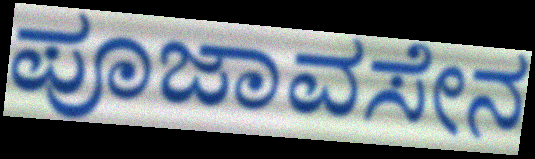
ಪೂಜಾವಸೇನ